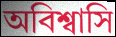
অবিশ্বাসি